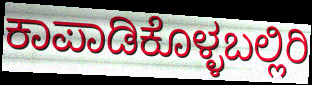
ಕಾಪಾಡಿಕೊಳ್ಳಬಲ್ಲಿರಿ